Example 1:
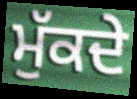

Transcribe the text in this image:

ਮੁੱਕਦੇ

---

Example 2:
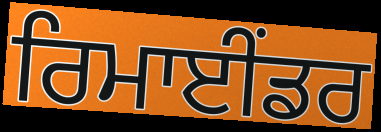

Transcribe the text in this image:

ਰਿਮਾਈਂਡਰ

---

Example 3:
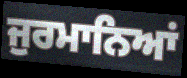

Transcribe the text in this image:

ਜੁਰਮਾਨਿਆਂ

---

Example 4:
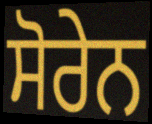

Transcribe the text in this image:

ਸੋਰੇਨ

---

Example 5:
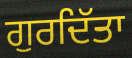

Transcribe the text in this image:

ਗੁਰਦਿੱਤਾ